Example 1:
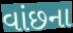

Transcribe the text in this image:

વાંછના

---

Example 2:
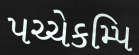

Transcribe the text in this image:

પચ્ચેકમ્પિ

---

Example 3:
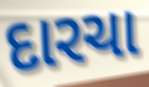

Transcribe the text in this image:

દારચા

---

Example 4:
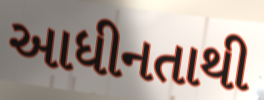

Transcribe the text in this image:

આધીનતાથી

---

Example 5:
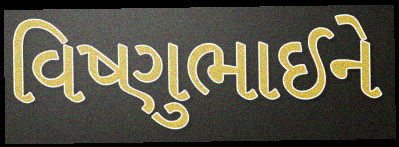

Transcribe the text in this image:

વિષ્ણુભાઈને